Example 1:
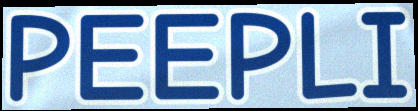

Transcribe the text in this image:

PEEPLI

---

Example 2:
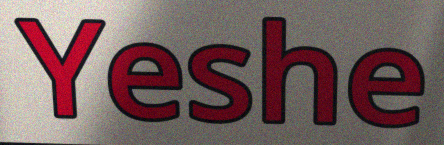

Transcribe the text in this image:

Yeshe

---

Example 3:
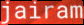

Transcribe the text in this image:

jairam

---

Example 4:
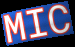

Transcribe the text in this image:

MIC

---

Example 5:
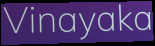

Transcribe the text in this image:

Vinayaka